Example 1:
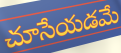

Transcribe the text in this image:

చూసేయడమే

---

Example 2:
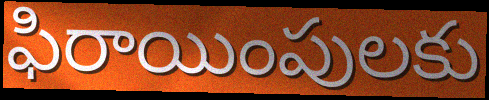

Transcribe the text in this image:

ఫిరాయింపులకు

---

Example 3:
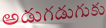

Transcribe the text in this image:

అడుగడుగుకు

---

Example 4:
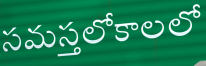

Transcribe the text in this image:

సమస్తలోకాలలో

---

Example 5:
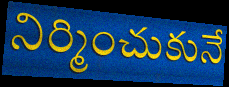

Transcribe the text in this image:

నిర్మించుకునే